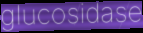
glucosidase